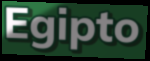
Egipto